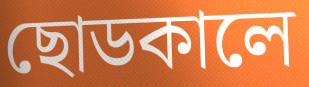
ছোডকালে